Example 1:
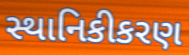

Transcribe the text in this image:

સ્થાનિકીકરણ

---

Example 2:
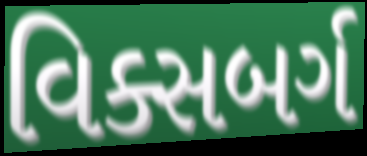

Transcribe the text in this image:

વિક્સબર્ગ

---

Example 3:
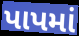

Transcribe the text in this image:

પાપમાં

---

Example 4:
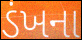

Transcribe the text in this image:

ડંખના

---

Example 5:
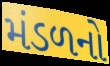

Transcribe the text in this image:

મંડળનો